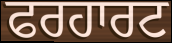
ਫਰਹਾਰਟ